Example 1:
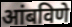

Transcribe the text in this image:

आंबविणे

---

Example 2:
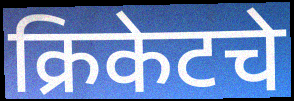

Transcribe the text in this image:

क्रिकेटचे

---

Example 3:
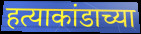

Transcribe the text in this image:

हत्याकांडाच्या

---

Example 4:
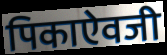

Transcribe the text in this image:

पिकाऐवजी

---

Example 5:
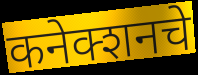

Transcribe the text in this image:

कनेक्शनचे